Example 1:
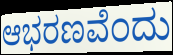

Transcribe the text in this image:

ಆಭರಣವೆಂದು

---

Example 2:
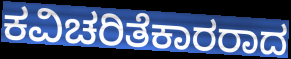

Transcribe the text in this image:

ಕವಿಚರಿತೆಕಾರರಾದ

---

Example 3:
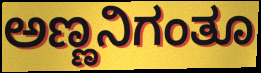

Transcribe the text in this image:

ಅಣ್ಣನಿಗಂತೂ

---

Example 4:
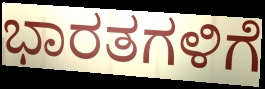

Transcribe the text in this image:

ಭಾರತಗಳಿಗೆ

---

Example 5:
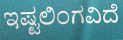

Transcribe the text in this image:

ಇಷ್ಟಲಿಂಗವಿದೆ